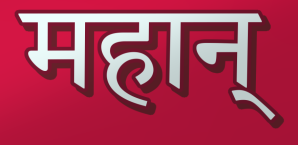
महान्